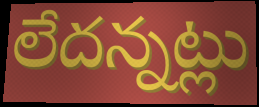
లేదన్నట్లు